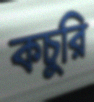
কচুরি